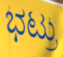
ಭಟ್ರು